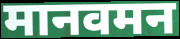
मानवमन